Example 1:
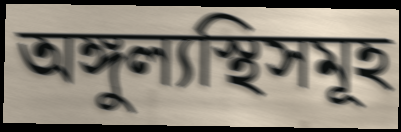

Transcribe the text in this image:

অঙ্গুল্যস্থিসমূহ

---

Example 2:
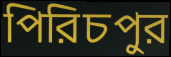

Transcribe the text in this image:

পিরিচপুর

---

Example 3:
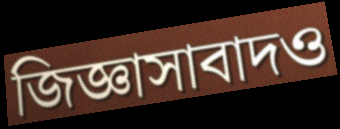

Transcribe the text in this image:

জিজ্ঞাসাবাদও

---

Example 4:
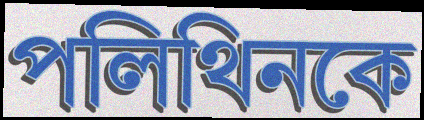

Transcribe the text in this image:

পলিথিনকে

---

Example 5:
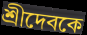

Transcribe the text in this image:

শ্রীদেবকে